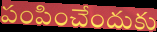
పంపించేందుకు